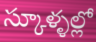
స్కూళ్ళల్లో